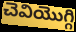
చెవియొగ్గి